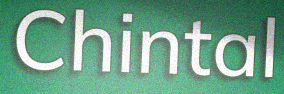
Chintal